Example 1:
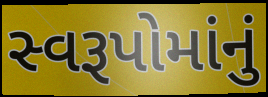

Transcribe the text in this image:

સ્વરૂપોમાંનું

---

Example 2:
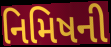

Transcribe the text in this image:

નિમિષની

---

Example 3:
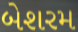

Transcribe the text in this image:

બેશરમ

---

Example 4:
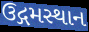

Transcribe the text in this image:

ઉદ્ગમસ્થાન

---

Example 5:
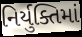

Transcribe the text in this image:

નિર્યુક્તિમાં